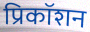
प्रिकॉशन